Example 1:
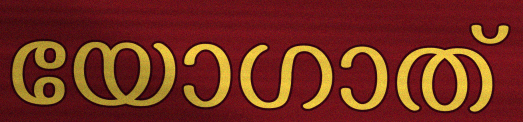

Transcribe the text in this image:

യോഗാത്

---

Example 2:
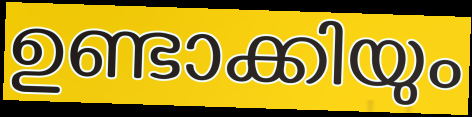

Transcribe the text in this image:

ഉണ്ടാക്കിയും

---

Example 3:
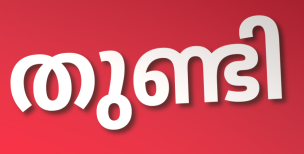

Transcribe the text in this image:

തുണ്ടി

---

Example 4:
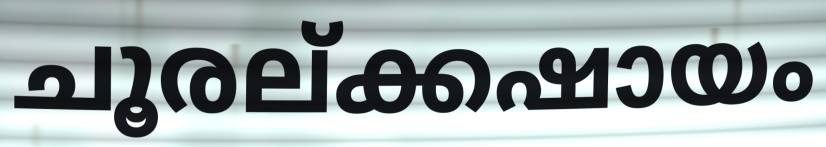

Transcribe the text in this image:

ചൂരല്ക്കഷായം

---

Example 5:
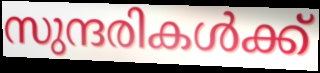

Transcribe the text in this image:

സുന്ദരികൾക്ക്